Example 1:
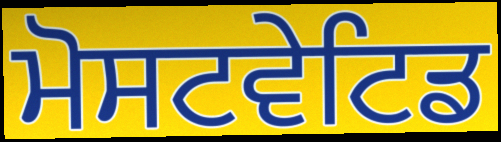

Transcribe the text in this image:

ਮੋਸਟਵੇਟਿਡ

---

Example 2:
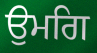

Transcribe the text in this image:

ਉਮਗਿ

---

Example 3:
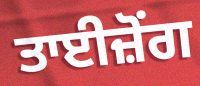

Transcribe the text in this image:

ਤਾਈਜ਼ੋਂਗ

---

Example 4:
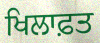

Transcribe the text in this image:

ਖਿਲਾਫ਼ਤ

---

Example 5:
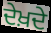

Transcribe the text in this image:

ਦੇਖ਼ਦੇ